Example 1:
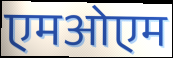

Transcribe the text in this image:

एमओएम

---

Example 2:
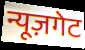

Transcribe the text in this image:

न्यूज़गेट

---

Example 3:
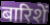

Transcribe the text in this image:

बारिशें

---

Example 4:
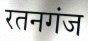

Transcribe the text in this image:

रतनगंज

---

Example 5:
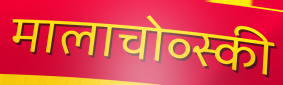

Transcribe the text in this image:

मालाचोव्स्की